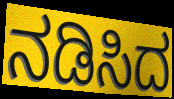
ನಡಿಸಿದ